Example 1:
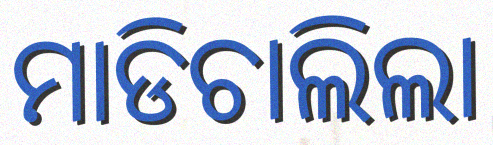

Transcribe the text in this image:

ମାଡିଚାଲିଲା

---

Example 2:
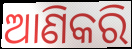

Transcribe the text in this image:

ଆଣିକରି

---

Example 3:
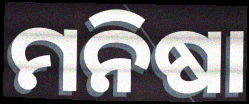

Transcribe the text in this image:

ମନିଷା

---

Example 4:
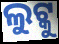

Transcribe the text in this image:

ଲୁଟ୍କୁ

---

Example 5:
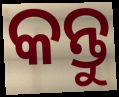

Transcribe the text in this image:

କନ୍ତୁ